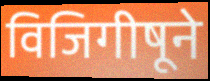
विजिगीषूने